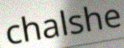
chalshe